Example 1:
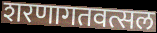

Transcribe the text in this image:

शरणागतवत्सल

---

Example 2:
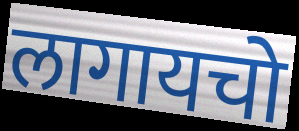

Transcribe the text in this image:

लागायचो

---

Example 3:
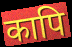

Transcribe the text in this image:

कापि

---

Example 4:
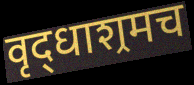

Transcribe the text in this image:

वृद्धाश्रमच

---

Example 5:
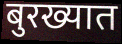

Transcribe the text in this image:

बुरख्यात